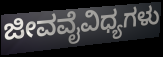
ಜೀವವೈವಿಧ್ಯಗಳು